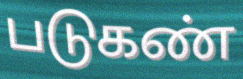
படுகண்